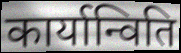
कार्यान्विति